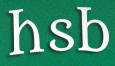
hsb